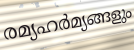
രമ്യഹർമ്യങ്ങളും